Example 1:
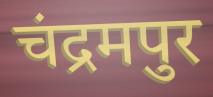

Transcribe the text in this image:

चंद्रमपुर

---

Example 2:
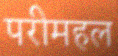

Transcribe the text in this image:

परीमहल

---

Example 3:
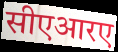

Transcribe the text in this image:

सीएआरए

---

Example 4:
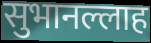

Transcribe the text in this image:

सुभानल्लाह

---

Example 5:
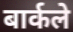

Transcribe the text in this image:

बार्कले